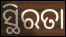
ସ୍ଥିରତା